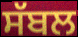
ਸੱਬਲ